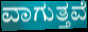
ವಾಗುತ್ತವೆ